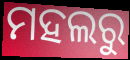
ମହଲରୁ